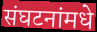
संघटनांमधे